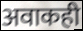
अवाकही